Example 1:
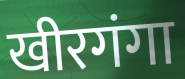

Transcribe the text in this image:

खीरगंगा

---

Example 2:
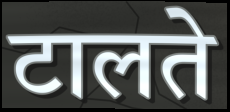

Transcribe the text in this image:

टालते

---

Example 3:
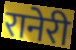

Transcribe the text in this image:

रानेरी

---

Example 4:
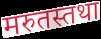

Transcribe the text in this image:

मरुतस्तथा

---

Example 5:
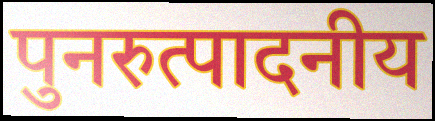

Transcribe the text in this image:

पुनरुत्पादनीय